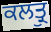
ਕਲਤ੍ਰੁ